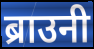
ब्राउनी